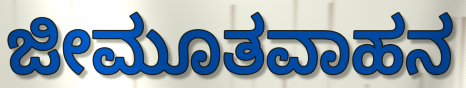
ಜೀಮೂತವಾಹನ